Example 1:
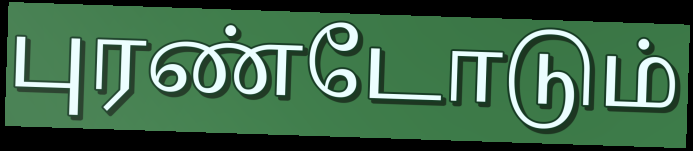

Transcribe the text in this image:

புரண்டோடும்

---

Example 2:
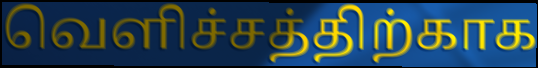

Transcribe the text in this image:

வெளிச்சத்திற்காக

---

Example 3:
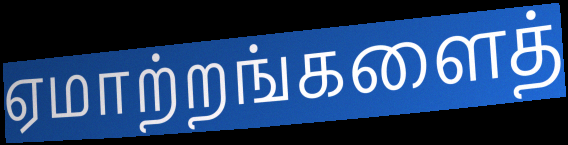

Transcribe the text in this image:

ஏமாற்றங்களைத்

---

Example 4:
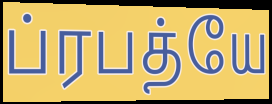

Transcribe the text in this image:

ப்ரபத்யே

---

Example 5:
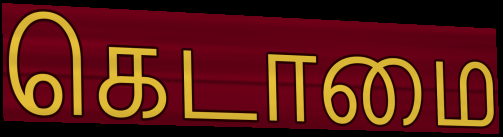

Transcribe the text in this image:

கெடாமை